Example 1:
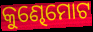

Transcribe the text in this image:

କୁଣ୍ଢେମୋଟ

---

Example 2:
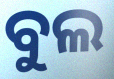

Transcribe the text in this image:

ବୁଲ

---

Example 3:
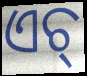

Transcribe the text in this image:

ଏଚ୍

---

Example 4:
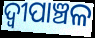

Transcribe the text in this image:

ଦ୍ୱୀପାଞ୍ଚଳ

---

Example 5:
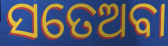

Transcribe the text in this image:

ସତେଅବା